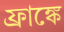
ফ্রাঙ্কে